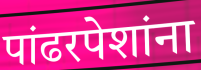
पांढरपेशांना